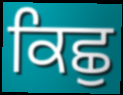
ਕਿਛੁ